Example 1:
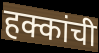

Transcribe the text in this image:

हक्कांची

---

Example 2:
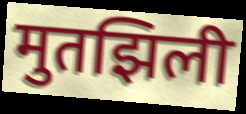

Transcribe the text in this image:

मुतझिली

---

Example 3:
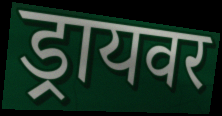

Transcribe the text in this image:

ड्रायवर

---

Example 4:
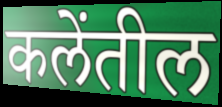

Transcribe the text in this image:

कलेंतील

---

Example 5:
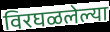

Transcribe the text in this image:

विरघळलेल्या